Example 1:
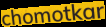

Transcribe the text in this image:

chomotkar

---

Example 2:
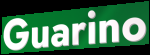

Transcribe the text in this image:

Guarino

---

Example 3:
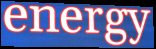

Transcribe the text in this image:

energy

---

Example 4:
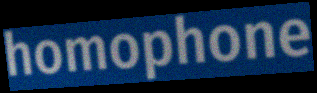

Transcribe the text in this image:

homophone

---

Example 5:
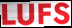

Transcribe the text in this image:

LUFS